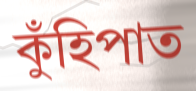
কুঁহিপাত